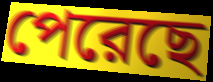
পেরেছে